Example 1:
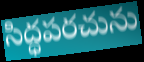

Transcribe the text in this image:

సిద్ధపరచును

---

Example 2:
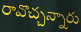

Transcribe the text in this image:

రావొచ్చన్నారు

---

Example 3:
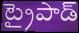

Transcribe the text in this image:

ట్రైపాడ్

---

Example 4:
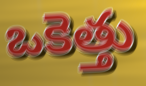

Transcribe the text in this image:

ఒకెత్తు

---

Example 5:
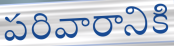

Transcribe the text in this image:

పరివారానికి